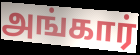
அங்கார்